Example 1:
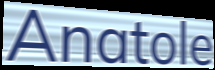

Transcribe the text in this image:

Anatole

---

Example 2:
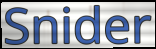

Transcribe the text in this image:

Snider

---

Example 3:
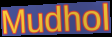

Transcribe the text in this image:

Mudhol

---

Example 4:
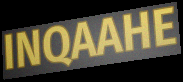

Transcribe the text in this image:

INQAAHE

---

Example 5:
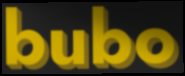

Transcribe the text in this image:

bubo